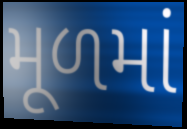
મૂળમાં